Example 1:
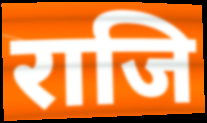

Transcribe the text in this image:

राजि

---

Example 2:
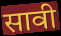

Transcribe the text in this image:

सावी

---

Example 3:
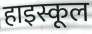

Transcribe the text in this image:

हाइस्कूल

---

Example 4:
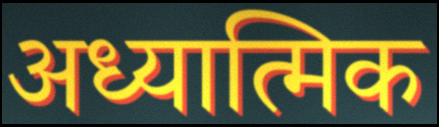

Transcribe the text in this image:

अध्यात्मिक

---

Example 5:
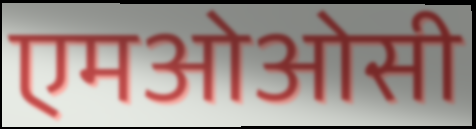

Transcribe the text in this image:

एमओओसी